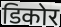
डिकोर